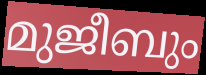
മുജീബും